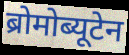
ब्रोमोब्यूटेन